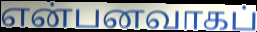
என்பனவாகப்